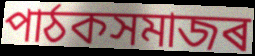
পাঠকসমাজৰ